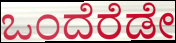
ಒಂದೆರೆಡೇ